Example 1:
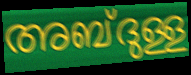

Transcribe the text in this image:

അബ്ദുള്ള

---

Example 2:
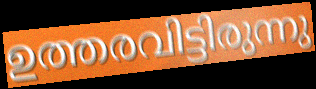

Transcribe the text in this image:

ഉത്തരവിട്ടിരുന്നു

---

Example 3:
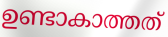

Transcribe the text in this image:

ഉണ്ടാകാത്തത്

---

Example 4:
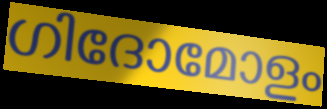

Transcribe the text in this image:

ഗിദോമോളം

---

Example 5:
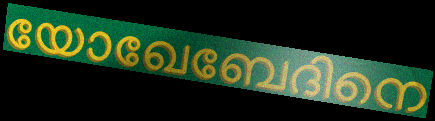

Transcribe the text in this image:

യോഖേബേദിനെ